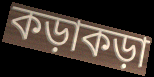
কড়াকড়া